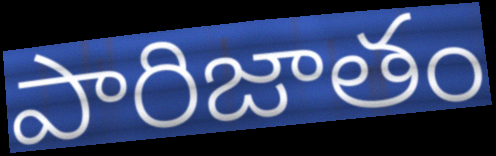
పారిజాతం